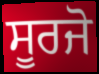
ਸੂਰਜੋ